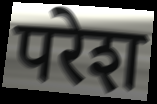
परेश